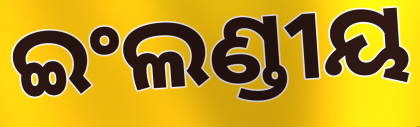
ଇଂଲଣ୍ଡୀୟ